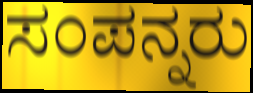
ಸಂಪನ್ನರು